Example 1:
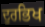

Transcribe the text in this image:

ਦੁਰਭਿਖ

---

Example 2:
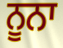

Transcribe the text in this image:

ਨੂਨਾ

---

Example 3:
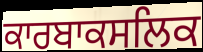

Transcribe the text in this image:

ਕਾਰਬਾਕਸਲਿਕ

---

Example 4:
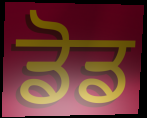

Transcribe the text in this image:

ਡੋਡ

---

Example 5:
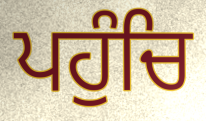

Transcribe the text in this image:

ਪਹੁੰਚਿ